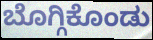
ಬೊಗ್ಗಿಕೊಂಡು